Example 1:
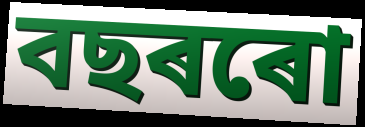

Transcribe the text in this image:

বছৰৰো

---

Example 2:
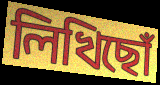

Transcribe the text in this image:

লিখিছোঁ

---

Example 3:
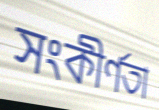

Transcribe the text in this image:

সংকীৰ্ণতা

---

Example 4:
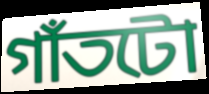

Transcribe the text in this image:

গাঁতটো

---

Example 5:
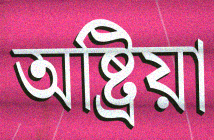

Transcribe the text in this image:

অষ্ট্ৰিয়া